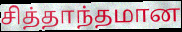
சித்தாந்தமான